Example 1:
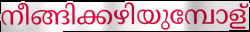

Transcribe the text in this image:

നീങ്ങിക്കഴിയുമ്പോള്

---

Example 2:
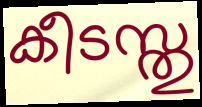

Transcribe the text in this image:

കീടസ്തു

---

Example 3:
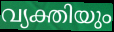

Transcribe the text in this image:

വ്യക്തിയും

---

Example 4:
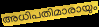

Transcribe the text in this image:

അധിപതിമാരായും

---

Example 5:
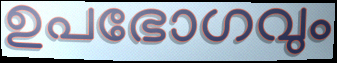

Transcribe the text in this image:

ഉപഭോഗവും